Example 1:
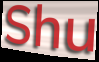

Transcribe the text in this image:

Shu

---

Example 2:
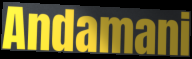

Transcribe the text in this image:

Andamani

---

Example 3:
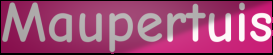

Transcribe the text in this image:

Maupertuis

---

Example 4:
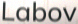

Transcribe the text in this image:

Labov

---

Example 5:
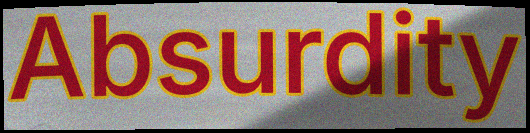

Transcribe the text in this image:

Absurdity